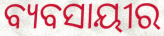
ବ୍ୟବସାୟୀର